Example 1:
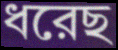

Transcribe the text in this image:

ধরেছ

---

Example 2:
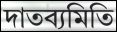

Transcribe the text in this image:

দাতব্যমিতি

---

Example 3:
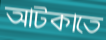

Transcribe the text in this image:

আটকাতে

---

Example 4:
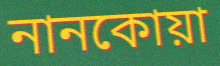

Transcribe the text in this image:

নানকোয়া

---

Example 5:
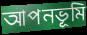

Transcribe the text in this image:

আপনভূমি